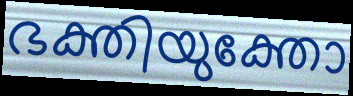
ഭക്തിയുക്തോ